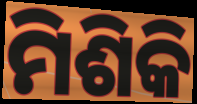
ମିଶିକି